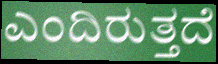
ಎಂದಿರುತ್ತದೆ